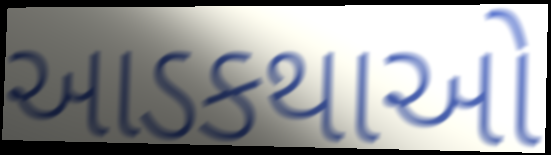
આડકથાઓ